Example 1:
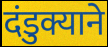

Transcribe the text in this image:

दंडुक्याने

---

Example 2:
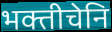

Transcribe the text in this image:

भक्तीचेनि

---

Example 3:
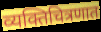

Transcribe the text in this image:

व्यक्तिचित्रणात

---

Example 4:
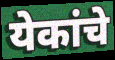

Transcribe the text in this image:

येकांचे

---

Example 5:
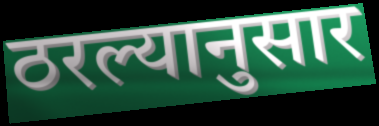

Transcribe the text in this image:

ठरल्यानुसार